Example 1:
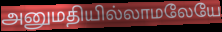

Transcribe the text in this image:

அனுமதியில்லாமலேயே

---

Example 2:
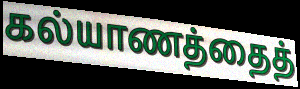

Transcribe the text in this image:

கல்யாணத்தைத்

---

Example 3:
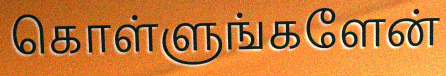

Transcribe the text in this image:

கொள்ளுங்களேன்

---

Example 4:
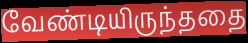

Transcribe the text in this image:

வேண்டியிருந்ததை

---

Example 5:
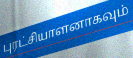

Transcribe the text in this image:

புரட்சியாளனாகவும்